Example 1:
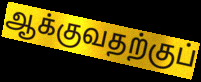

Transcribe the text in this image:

ஆக்குவதற்குப்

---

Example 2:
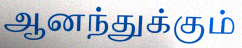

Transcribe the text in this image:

ஆனந்துக்கும்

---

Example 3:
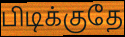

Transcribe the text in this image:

பிடிக்குதே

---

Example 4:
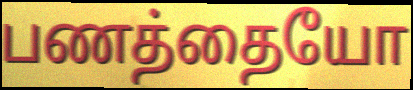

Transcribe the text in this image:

பணத்தையோ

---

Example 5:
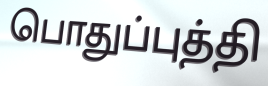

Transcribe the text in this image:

பொதுப்புத்தி